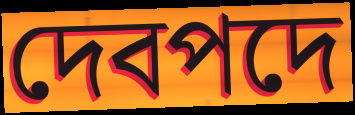
দেবপদে